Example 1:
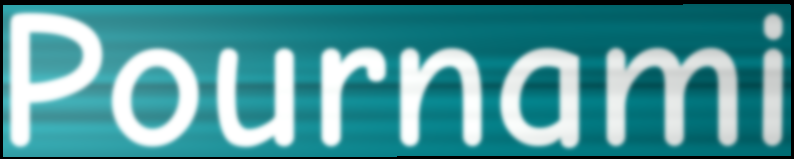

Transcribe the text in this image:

Pournami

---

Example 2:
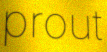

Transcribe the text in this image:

prout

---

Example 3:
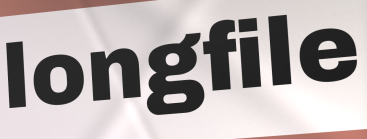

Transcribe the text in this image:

longfile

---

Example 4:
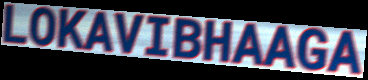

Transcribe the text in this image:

LOKAVIBHAAGA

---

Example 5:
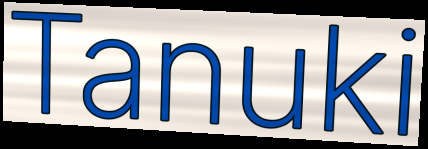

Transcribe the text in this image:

Tanuki